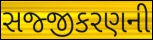
સજ્જીકરણની